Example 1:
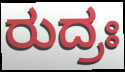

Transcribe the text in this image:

ರುದ್ರಃ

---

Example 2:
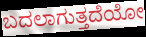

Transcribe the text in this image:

ಬದಲಾಗುತ್ತದೆಯೋ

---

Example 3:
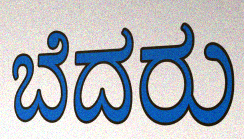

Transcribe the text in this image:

ಬೆದರು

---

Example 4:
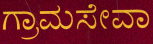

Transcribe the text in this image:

ಗ್ರಾಮಸೇವಾ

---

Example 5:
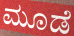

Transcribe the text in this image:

ಮೂಡೆ